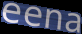
eena